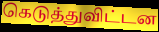
கெடுத்துவிட்டன